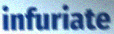
infuriate